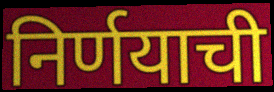
निर्णयाची